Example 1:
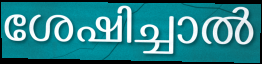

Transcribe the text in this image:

ശേഷിച്ചാൽ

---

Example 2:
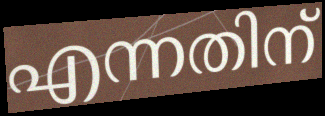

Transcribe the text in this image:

എന്നതിന്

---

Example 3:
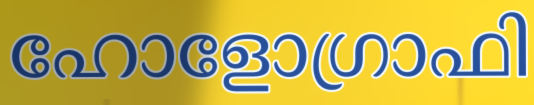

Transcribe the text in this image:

ഹോളോഗ്രാഫി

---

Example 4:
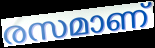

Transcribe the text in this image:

രസമാണ്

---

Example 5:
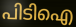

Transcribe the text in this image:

പിടിഐ